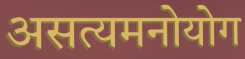
असत्यमनोयोग